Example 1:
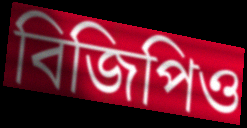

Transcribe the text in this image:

বিজিপিও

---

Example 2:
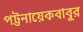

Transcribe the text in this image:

পট্টনায়েকবাবুর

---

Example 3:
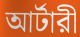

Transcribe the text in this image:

আর্টারী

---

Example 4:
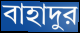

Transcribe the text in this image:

বাহাদুর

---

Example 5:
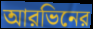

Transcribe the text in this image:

আরভিনের